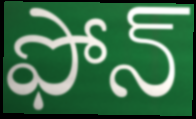
ఫోన్